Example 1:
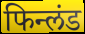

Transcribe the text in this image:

फिन्लंड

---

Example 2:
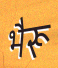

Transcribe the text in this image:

भैरू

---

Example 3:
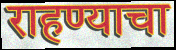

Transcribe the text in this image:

राहण्याचा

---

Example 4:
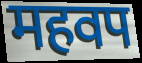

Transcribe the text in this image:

महवप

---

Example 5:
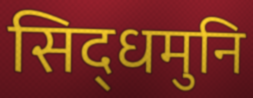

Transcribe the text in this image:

सिद्धमुनि